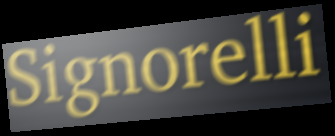
Signorelli